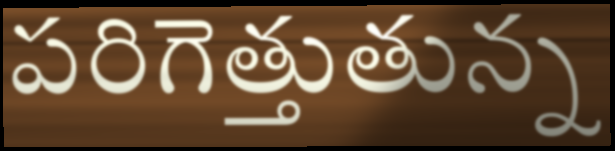
పరిగెత్తుతున్న